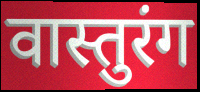
वास्तुरंग